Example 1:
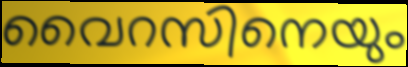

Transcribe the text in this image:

വൈറസിനെയും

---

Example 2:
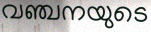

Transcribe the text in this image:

വഞ്ചനയുടെ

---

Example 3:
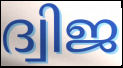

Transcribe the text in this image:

ദ്വിജ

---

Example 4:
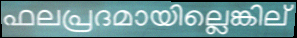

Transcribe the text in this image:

ഫലപ്രദമായില്ലെങ്കില്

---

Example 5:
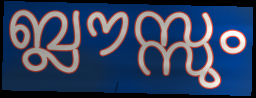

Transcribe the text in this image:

ബ്ലൗസ്സും